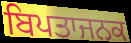
ਬਿਪਤਾਜਨਕ